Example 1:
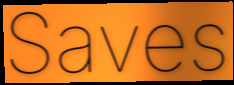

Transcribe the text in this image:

Saves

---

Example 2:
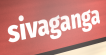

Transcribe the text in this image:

sivaganga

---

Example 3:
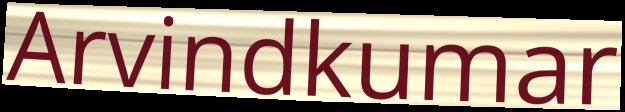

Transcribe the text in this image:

Arvindkumar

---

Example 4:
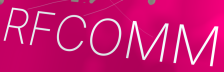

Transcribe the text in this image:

RFCOMM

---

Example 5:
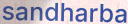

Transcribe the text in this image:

sandharba